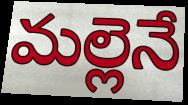
మల్లెనే